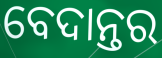
ବେଦାନ୍ତର